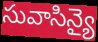
సువాసిన్యై